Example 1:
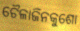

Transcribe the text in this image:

ଚୈଳାଜିନକୁଶୋ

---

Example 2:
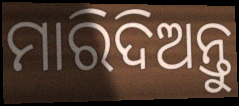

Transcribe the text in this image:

ମାରିଦିଅନ୍ତୁ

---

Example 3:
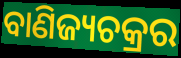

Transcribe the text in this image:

ବାଣିଜ୍ୟଚକ୍ରର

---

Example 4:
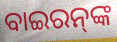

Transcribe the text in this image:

ବାଇରନ୍‌ଙ୍କ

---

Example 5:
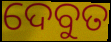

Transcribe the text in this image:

ଦେବୁତ